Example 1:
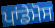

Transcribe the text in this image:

ਪਾਂਡੇਮੋਸ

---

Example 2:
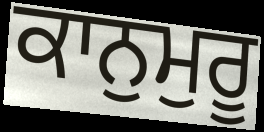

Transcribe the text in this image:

ਕਾਨੁਮੁਰੂ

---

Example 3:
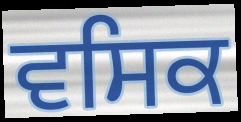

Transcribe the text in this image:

ਵਸਿਕ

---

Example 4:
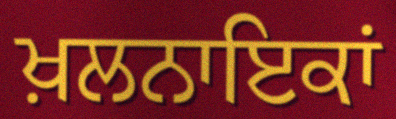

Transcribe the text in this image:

ਖ਼ਲਨਾਇਕਾਂ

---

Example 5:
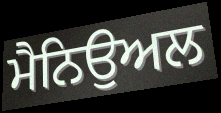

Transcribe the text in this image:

ਮੈਨਿਉਅਲ